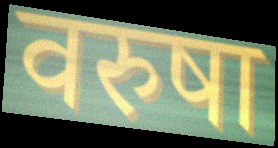
वरुषा